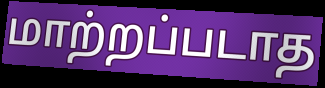
மாற்றப்படாத